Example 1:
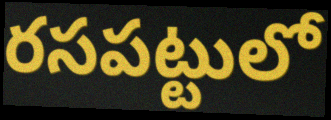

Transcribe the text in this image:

రసపట్టులో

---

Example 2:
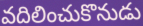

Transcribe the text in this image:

వదిలించుకొనుడు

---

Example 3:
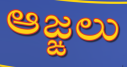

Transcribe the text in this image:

ఆజ్ఙలు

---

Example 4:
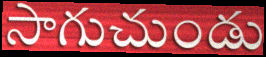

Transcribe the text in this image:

సాగుచుండు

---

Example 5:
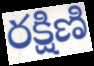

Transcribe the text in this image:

రక్షిణి